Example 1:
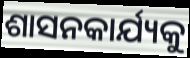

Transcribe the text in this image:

ଶାସନକାର୍ଯ୍ୟକୁ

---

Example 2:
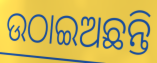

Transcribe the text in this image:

ଉଠାଇଅଛନ୍ତି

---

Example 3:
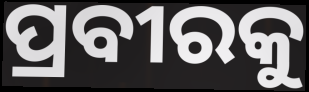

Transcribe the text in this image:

ପ୍ରବୀରକୁ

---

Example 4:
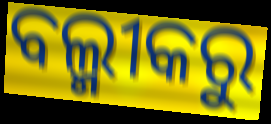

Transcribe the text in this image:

ବଲ୍ମୀକରୁ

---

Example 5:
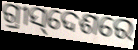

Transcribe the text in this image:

ଗ୍ରୀସ୍‌ଦେଶରେ